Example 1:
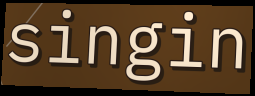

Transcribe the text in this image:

singin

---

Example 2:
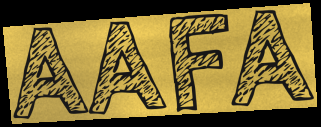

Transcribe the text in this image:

AAFA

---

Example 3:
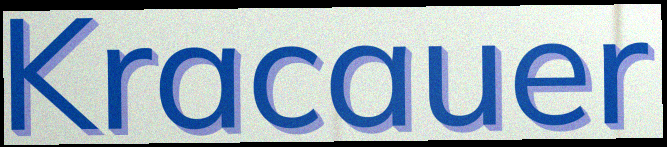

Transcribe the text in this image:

Kracauer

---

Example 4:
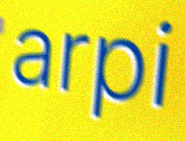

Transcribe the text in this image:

arpi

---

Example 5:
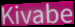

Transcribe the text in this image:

Kivabe